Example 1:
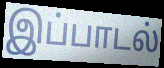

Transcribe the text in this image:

இப்பாடல்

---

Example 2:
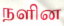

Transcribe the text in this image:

நளின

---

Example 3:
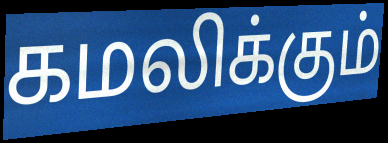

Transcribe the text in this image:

கமலிக்கும்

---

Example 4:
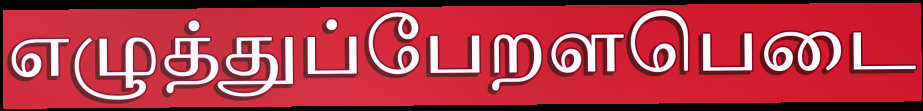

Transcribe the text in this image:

எழுத்துப்பேறளபெடை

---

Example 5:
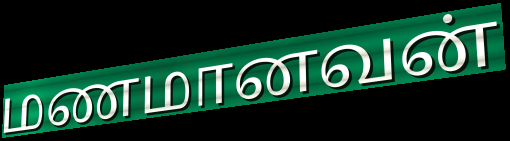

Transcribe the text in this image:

மணமானவன்